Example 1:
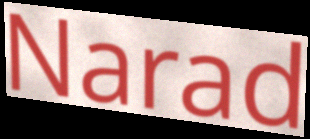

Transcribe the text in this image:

Narad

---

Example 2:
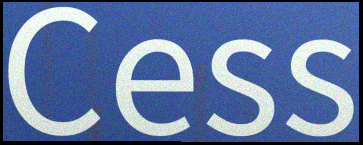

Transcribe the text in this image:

Cess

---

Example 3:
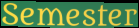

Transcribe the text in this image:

Semester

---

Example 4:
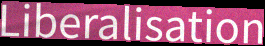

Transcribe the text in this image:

Liberalisation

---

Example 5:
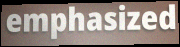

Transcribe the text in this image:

emphasized